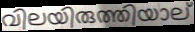
വിലയിരുത്തിയാല്